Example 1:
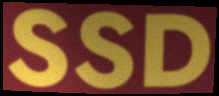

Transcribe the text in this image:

SSD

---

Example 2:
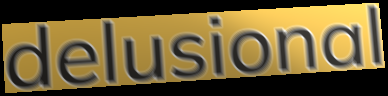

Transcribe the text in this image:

delusional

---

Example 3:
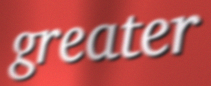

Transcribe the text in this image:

greater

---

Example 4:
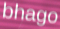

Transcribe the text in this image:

bhago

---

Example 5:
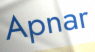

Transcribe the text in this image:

Apnar